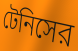
টেনিসের